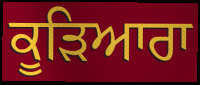
ਕੂੜਿਆਰਾ